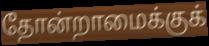
தோன்றாமைக்குக்